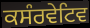
ਕਸੰਰਵੇਟਿਵ